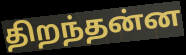
திறந்தன்ன